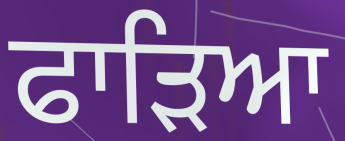
ਫਾੜਿਆ